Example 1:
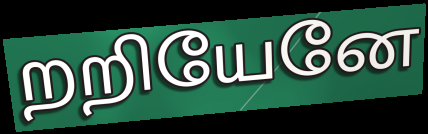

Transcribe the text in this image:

றறியேனே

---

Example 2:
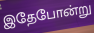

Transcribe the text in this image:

இதேபோன்று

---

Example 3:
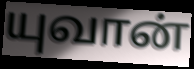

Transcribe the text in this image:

யுவான்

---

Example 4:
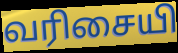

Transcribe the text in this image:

வரிசையி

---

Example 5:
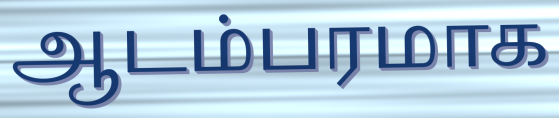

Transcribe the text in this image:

ஆடம்பரமாக